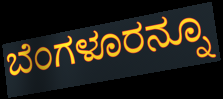
ಬೆಂಗಳೂರನ್ನೂ